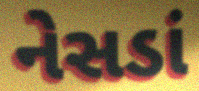
નેસડાં